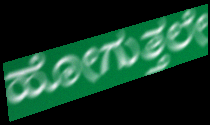
ಹೋಗುತ್ತಲೇ